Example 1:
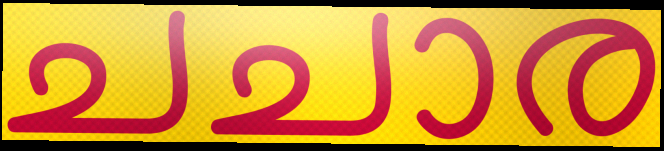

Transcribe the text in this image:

ചചാര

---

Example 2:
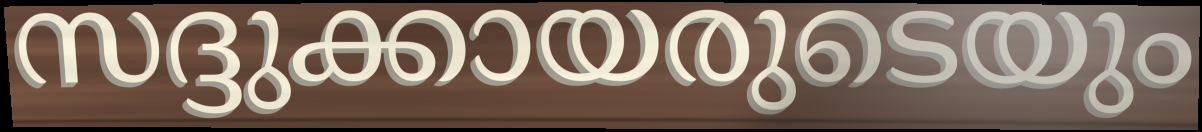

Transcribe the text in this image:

സദ്ദുക്കായരുടെയും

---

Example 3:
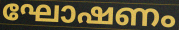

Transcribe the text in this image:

ഘോഷണം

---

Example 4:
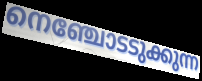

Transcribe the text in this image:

നെഞ്ചോടടുക്കുന്ന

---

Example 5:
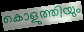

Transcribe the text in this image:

കൊളുത്തിയും